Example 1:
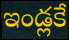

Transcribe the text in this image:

ఇండ్లకే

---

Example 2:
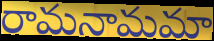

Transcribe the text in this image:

రామనామమా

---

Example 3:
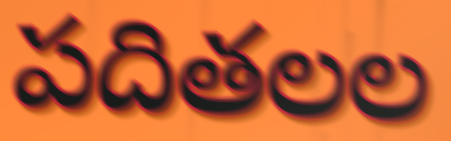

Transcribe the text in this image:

పదితలల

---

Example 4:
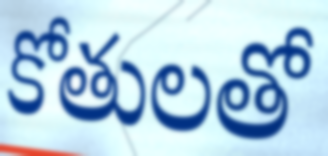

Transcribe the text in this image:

కోతులతో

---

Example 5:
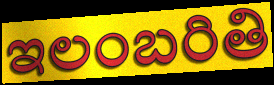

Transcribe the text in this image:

ఇలంబరితి